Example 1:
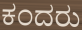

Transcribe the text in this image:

ಕಂದರು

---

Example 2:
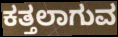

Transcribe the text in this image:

ಕತ್ತಲಾಗುವ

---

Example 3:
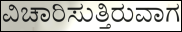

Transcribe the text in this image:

ವಿಚಾರಿಸುತ್ತಿರುವಾಗ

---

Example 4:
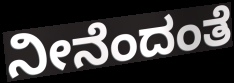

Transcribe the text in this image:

ನೀನೆಂದಂತೆ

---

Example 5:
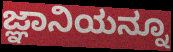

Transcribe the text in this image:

ಜ್ಞಾನಿಯನ್ನೂ